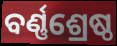
ବର୍ଣ୍ଣଶ୍ରେଷ୍ଠ